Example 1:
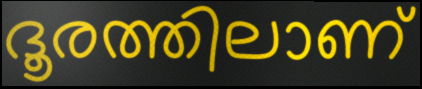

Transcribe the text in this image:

ദൂരത്തിലാണ്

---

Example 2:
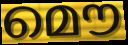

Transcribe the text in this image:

മൌ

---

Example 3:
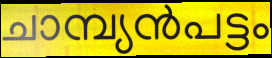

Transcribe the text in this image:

ചാമ്പ്യൻപട്ടം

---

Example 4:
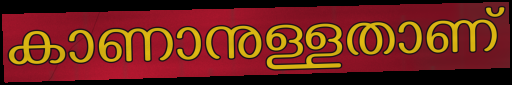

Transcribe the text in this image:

കാണാനുള്ളതാണ്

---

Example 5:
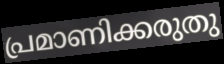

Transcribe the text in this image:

പ്രമാണിക്കരുതു